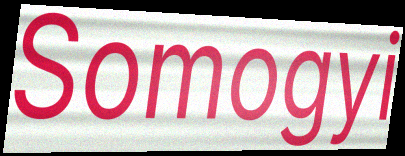
Somogyi